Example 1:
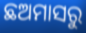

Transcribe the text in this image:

ଛଅମାସରୁ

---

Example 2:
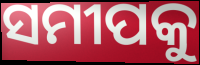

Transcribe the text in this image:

ସମୀପକୁ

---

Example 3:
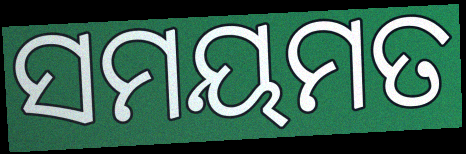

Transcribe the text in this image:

ସମୟମତ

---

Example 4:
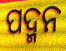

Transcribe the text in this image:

ପଦ୍ମନ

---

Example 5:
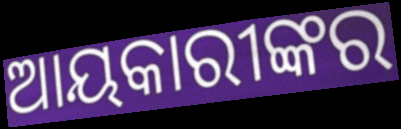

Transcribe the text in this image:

ଆୟକାରୀଙ୍କର